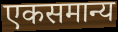
एकसमान्य